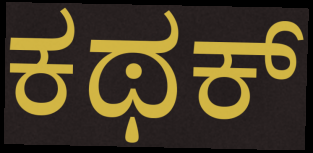
ಕಥಕ್